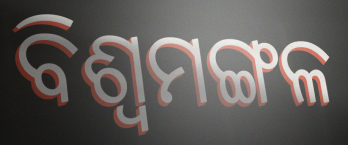
ବିଶ୍ୱମଙ୍ଗଳ